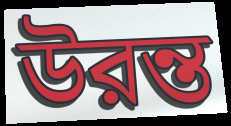
উরন্ত